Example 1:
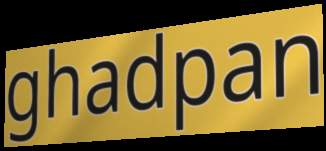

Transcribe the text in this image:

ghadpan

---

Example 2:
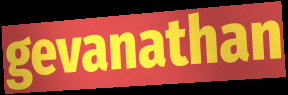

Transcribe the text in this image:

gevanathan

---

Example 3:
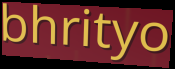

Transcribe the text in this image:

bhrityo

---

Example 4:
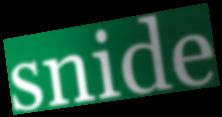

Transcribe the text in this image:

snide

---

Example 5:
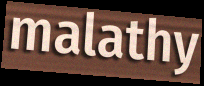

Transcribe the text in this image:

malathy